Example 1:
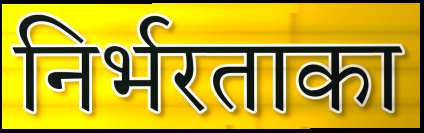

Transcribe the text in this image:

निर्भरताका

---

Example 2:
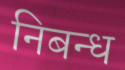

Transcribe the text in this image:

निबन्ध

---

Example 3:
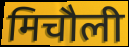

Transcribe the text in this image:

मिचौली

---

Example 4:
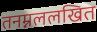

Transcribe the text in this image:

तनम्नललखित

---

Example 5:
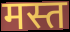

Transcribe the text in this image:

मस्त